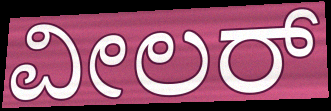
ವೀಲರ್